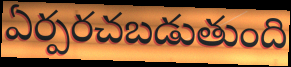
ఏర్పరచబడుతుంది